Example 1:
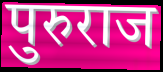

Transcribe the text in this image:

पुरुराज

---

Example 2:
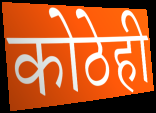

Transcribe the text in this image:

कोठेही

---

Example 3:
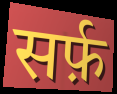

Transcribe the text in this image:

सर्फ़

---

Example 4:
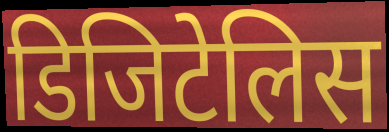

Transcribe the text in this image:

डिजिटेलिस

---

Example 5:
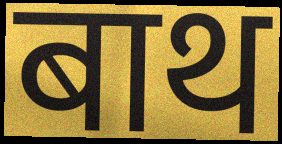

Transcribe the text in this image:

बाथ